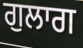
ਗੁਲਾਗ